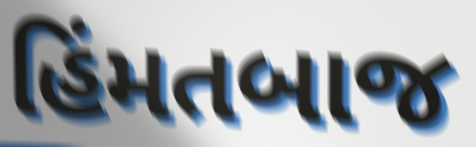
હિંમતબાજ